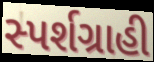
સ્પર્શગ્રાહી